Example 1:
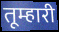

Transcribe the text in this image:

तूम्हारी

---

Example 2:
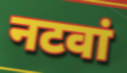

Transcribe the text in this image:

नटवां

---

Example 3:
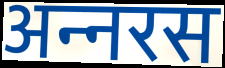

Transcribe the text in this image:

अन्नरस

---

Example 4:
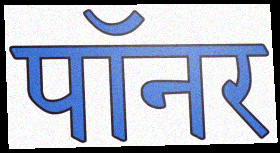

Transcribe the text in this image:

पॉनर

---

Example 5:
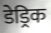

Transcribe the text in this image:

डेड्रिक